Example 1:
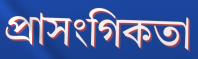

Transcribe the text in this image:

প্ৰাসংগিকতা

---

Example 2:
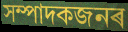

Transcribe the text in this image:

সম্পাদকজনৰ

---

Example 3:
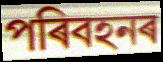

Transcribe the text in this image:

পৰিবহনৰ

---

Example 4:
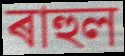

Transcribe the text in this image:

ৰাহুল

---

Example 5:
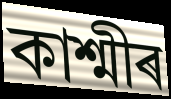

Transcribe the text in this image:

কাশ্মীৰ